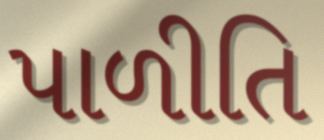
પાળીતિ